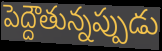
పెద్దౌతున్నప్పుడు